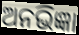
ଅନଭିଜ୍ଞା